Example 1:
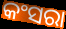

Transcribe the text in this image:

କଂସରା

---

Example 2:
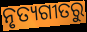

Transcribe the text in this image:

ନୃତ୍ୟଗୀତରୁ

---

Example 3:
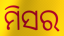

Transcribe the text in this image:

ମିସର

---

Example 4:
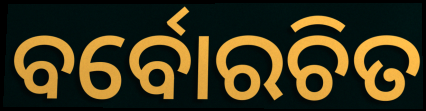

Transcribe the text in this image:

ବର୍ବୋରଚିତ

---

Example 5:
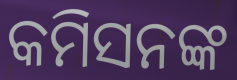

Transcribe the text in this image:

କମିସନଙ୍କ